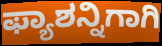
ಫ್ಯಾಶನ್ನಿಗಾಗಿ